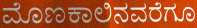
ಮೊಣಕಾಲಿನವರೆಗೂ